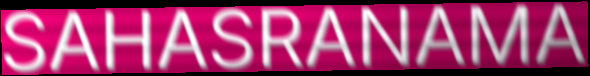
SAHASRANAMA